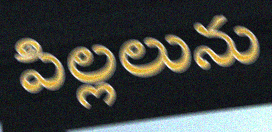
పిల్లలును